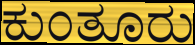
ಕುಂತೂರು